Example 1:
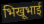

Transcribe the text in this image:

भिखूभाई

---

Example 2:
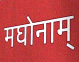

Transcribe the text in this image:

मघोनाम्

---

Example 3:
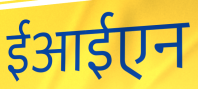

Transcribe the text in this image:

ईआईएन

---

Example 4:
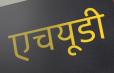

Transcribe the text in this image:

एचयूडी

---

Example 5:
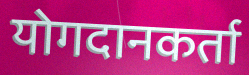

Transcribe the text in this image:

योगदानकर्ता